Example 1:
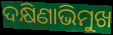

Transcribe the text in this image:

ଦକ୍ଷିଣାଭିମୁଖ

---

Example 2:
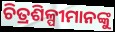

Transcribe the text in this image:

ଚିତ୍ରଶିଳ୍ପୀମାନଙ୍କୁ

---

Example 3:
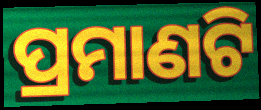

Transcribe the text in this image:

ପ୍ରମାଣଟି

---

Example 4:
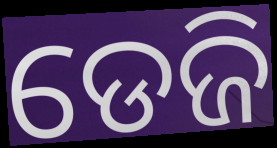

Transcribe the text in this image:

ଡେଜି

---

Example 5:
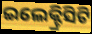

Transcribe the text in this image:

ଇଲେକ୍ଟ୍ରିସିଟି